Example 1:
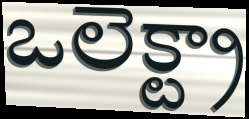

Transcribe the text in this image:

ఒలెక్ట్రా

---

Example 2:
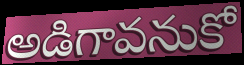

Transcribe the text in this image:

అడిగావనుకో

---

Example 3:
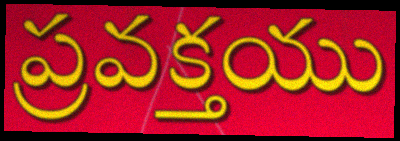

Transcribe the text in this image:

ప్రవక్తయు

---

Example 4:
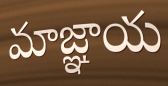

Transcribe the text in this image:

మాజ్ఞాయ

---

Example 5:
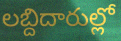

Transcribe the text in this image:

లబ్దిదారుల్లో